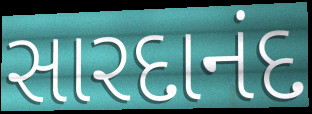
સારદાનંદ